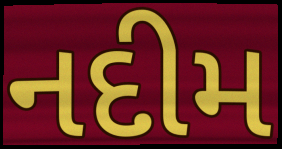
નદીમ